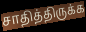
சாதித்திருக்க